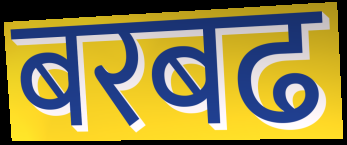
बरबढ